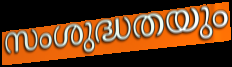
സംശുദ്ധതയും